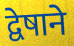
द्वेषाने